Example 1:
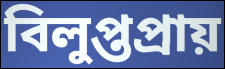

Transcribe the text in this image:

বিলুপ্তপ্রায়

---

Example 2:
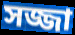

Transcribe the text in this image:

সজ্জা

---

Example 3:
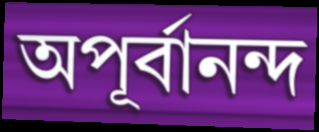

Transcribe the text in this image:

অপূর্বানন্দ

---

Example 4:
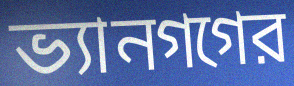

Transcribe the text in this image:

ভ্যানগগের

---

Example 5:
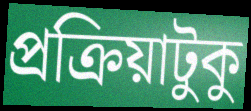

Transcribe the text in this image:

প্রক্রিয়াটুকু